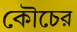
কৌচের